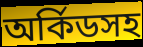
অর্কিডসহ